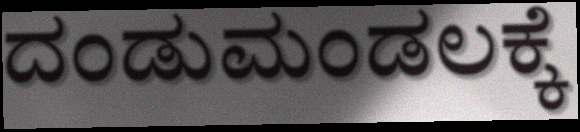
ದಂಡುಮಂಡಲಕ್ಕೆ